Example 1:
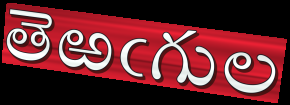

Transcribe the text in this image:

తెఱఁగుల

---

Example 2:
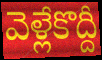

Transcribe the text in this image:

వెళ్లేకొద్దీ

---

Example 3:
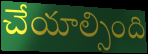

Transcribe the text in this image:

చేయాల్సింది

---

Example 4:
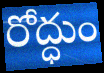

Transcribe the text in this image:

రోద్ధుం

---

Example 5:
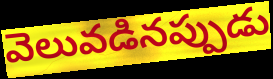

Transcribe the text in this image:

వెలువడినప్పుడు